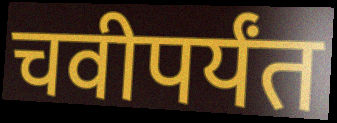
चवीपर्यंत